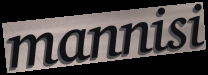
mannisi